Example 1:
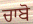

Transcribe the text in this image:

ਚਾਬੋ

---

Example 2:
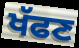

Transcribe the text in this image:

ਖੱਫਣ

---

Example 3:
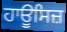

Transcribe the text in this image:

ਹਾਊਸਿਜ਼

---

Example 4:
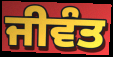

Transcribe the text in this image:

ਜੀਵੰਤ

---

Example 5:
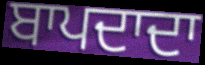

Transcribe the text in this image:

ਬਾਪਦਾਦਾ